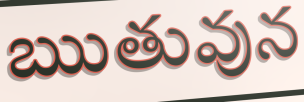
ఋతువున